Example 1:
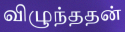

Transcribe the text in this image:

விழுந்ததன்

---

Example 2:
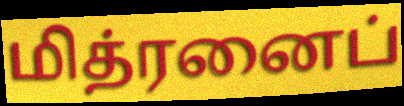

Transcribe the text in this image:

மித்ரனைப்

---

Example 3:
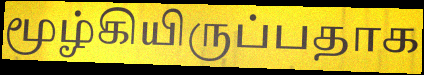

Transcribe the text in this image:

மூழ்கியிருப்பதாக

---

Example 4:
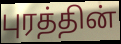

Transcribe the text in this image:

புரத்தின்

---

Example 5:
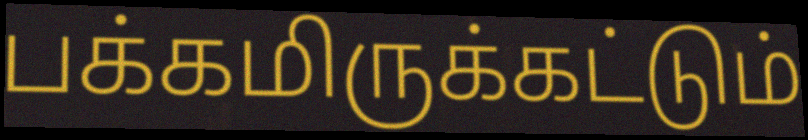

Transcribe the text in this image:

பக்கமிருக்கட்டும்